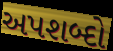
અપશબ્દો